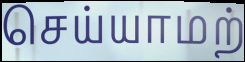
செய்யாமற்